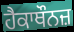
ਹੈਕਾਥੌਨਜ਼